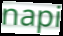
napi